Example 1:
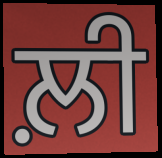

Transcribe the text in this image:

ਲ਼ੀ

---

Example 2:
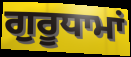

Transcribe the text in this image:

ਗੁਰੂਧਾਮਾਂ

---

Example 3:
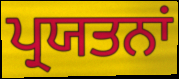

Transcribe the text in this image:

ਪ੍ਰਯਤਨਾਂ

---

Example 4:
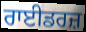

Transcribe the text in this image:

ਰਾਈਡਰਜ਼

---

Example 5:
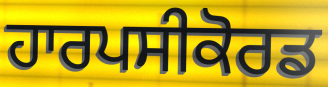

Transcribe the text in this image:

ਹਾਰਪਸੀਕੋਰਡ